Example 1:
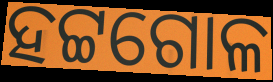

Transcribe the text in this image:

ହଟ୍ଟଗୋଳ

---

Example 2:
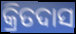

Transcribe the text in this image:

କ୍ରିତଦାସ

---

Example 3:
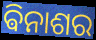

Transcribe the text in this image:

ଵିନାଶର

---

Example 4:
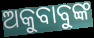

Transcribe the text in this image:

ଅକୁବାବୁଙ୍କ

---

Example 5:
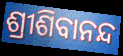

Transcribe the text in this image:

ଶ୍ରୀଶିବାନନ୍ଦ